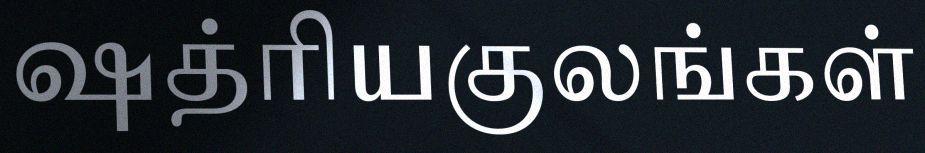
ஷத்ரியகுலங்கள்